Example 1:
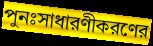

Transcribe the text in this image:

পুনঃসাধারণীকরণের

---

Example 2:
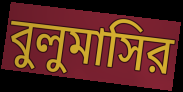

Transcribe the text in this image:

বুলুমাসির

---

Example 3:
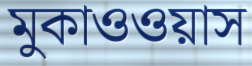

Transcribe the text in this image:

মুকাওওয়াস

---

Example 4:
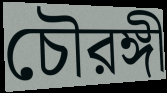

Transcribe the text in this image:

চৌরঙ্গী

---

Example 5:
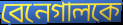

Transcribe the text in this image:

বেনেগালকে